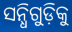
ସନ୍ଧିଗୁଡ଼ିକୁ